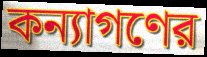
কন্যাগণের